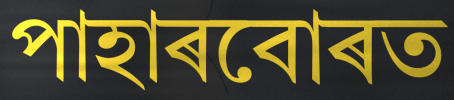
পাহাৰবোৰত